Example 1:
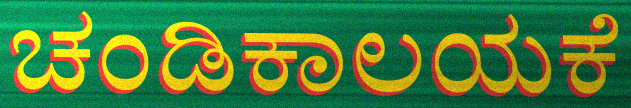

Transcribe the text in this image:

ಚಂಡಿಕಾಲಯಕೆ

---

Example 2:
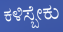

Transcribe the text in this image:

ಕಳಿಸ್ಬೇಕು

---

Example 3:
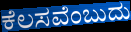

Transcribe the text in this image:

ಕೆಲಸವೆಂಬುದು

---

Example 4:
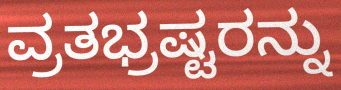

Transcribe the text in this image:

ವ್ರತಭ್ರಷ್ಟರನ್ನು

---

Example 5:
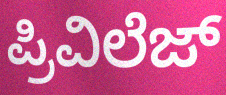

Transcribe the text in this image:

ಪ್ರಿವಿಲೆಜ್